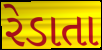
રેડાતા